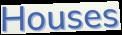
Houses